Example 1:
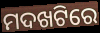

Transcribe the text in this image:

ମଦଖଟିରେ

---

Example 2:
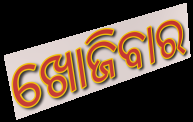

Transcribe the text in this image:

ଖୋଜିବାର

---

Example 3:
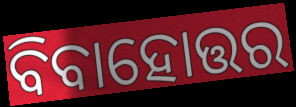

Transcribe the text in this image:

ବିବାହୋତ୍ତର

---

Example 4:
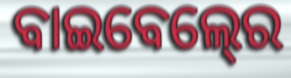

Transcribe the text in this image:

ବାଇବେଲ୍‍ରେ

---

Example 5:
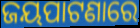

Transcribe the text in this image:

ଜୟପାଟଣାରେ